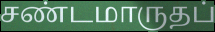
சண்டமாருதப்